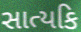
સાત્યકિ